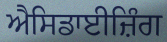
ਐਸਿਡਾਈਜ਼ਿੰਗ